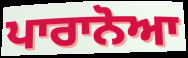
ਪਾਰਾਨੋਆ